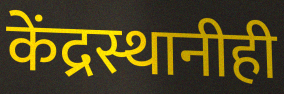
केंद्रस्थानीही